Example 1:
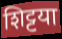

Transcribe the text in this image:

शिट्टया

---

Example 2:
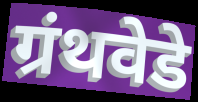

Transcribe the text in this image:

ग्रंथवेडे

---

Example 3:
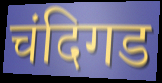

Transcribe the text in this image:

चंदिगड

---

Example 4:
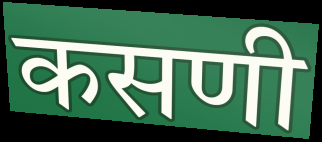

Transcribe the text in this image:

कसणी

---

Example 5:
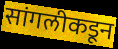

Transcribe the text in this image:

सांगलीकडून